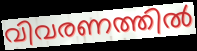
വിവരണത്തിൽ